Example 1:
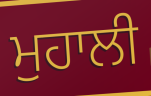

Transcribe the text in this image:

ਮੁਹਾਲੀ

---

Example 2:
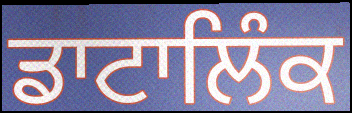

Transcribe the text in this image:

ਡਾਟਾਲਿੰਕ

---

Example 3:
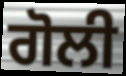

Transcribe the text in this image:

ਗੋਲੀ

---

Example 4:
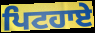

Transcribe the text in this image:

ਪਿਟਹਾਏ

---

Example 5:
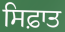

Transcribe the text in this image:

ਸਿਫ਼ਾਤ